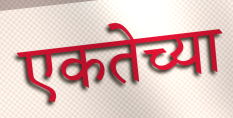
एकतेच्या